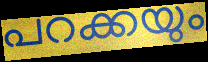
പറക്കയും